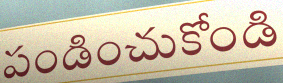
పండించుకోండి